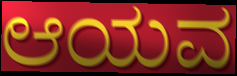
ಆಯವ